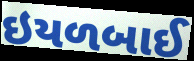
ઇયળબાઈ